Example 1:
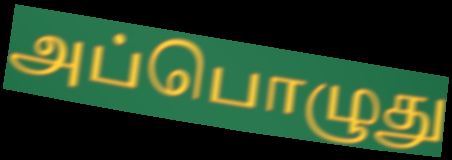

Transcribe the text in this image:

அப்பொழுது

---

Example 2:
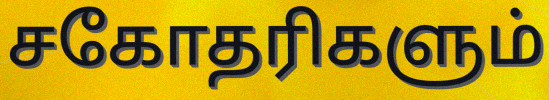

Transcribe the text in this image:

சகோதரிகளும்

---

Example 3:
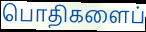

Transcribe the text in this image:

பொதிகளைப்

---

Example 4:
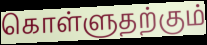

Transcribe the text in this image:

கொள்ளுதற்கும்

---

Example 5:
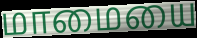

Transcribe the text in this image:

மாமையை